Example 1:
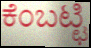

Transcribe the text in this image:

ಕೆಂಬಟ್ಟಿ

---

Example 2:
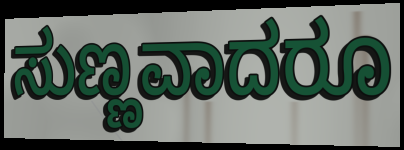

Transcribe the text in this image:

ಸುಣ್ಣವಾದರೂ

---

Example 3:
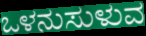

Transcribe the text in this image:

ಒಳನುಸುಳುವ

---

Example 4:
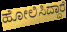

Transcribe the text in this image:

ಹೋಲಿಸಿದ್ದಾರೆ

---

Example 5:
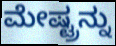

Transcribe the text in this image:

ಮೇಷ್ಟ್ರನ್ನು